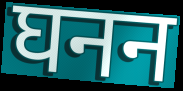
घनन